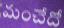
మంచేదో